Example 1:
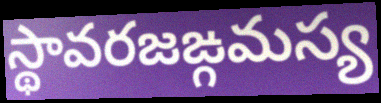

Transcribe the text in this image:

స్థావరజఙ్గమస్య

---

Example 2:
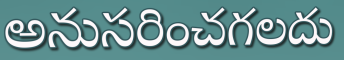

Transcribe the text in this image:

అనుసరించగలదు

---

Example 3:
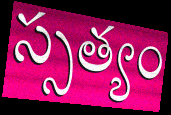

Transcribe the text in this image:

స్సత్యం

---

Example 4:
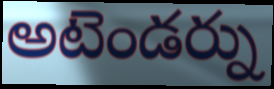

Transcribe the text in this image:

అటెండర్ను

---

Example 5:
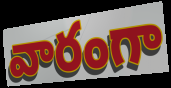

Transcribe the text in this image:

వారంగా